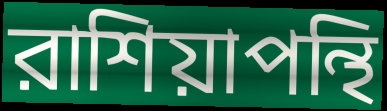
রাশিয়াপন্থি